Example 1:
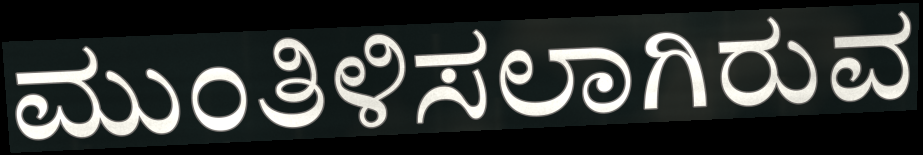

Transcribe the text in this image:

ಮುಂತಿಳಿಸಲಾಗಿರುವ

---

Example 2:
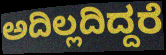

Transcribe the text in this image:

ಅದಿಲ್ಲದಿದ್ದರೆ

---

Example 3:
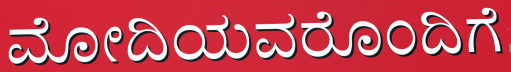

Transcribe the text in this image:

ಮೋದಿಯವರೊಂದಿಗೆ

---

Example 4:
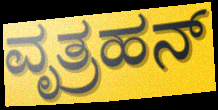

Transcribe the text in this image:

ವೃತ್ರಹನ್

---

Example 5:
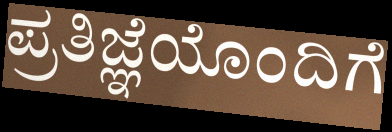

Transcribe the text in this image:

ಪ್ರತಿಜ್ಞೆಯೊಂದಿಗೆ